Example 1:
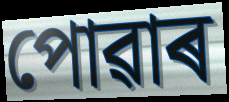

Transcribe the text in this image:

পোৱাৰ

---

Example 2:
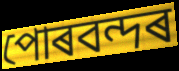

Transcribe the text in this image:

পোৰবন্দৰ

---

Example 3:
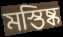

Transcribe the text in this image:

মস্তিষ্ক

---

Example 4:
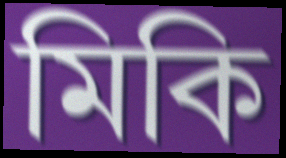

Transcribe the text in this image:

মিকি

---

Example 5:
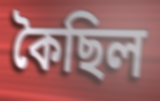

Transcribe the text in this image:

কৈছিল